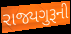
રાજ્યગુરૂની